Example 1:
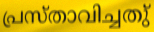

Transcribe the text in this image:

പ്രസ്താവിച്ചതു്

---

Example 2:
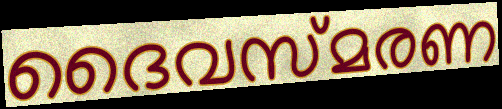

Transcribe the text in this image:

ദൈവസ്മരണ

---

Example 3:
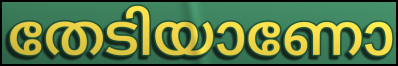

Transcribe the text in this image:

തേടിയാണോ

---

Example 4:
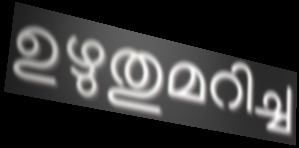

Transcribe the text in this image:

ഉഴുതുമറിച്ച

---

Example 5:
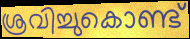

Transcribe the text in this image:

ശ്രവിച്ചുകൊണ്ട്